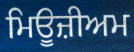
ਮਿਊਜ਼ੀਅਮ